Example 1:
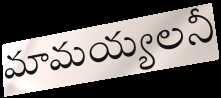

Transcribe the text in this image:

మామయ్యలనీ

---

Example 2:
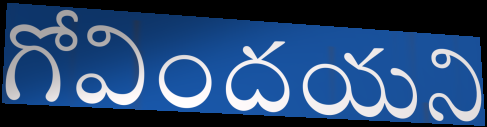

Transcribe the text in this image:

గోవిందయని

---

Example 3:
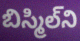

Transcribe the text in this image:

బిస్మిల్‌ని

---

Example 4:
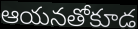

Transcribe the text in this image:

ఆయనతోకూడ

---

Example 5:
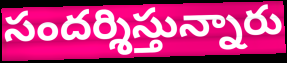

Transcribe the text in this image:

సందర్శిస్తున్నారు